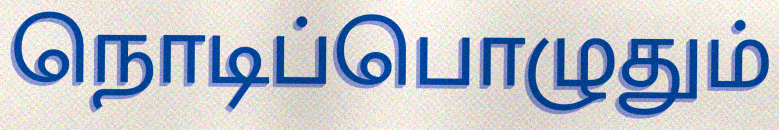
நொடிப்பொழுதும்